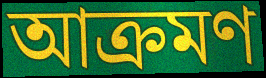
আক্রমণ